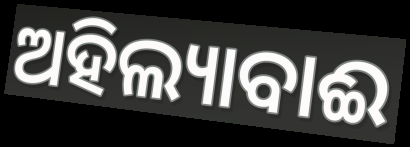
ଅହିଲ୍ୟାବାଈ